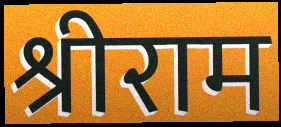
श्रीराम